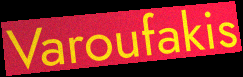
Varoufakis